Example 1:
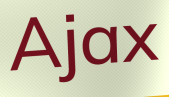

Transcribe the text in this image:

Ajax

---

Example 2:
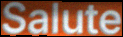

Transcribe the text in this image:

Salute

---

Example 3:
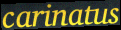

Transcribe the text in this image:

carinatus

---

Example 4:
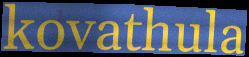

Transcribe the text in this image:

kovathula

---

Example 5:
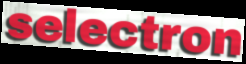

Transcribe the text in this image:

selectron